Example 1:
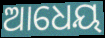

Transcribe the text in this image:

ଆଧେୟ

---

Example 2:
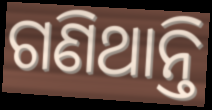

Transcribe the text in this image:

ଗଣିଥାନ୍ତି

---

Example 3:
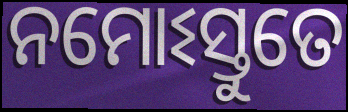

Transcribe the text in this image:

ନମୋଽସ୍ତୁତେ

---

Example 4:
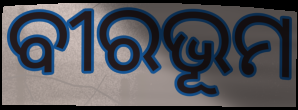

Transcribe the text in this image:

ବୀରଭୂମ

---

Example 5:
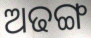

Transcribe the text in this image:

ଅଢଙ୍ଗ